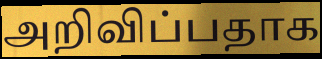
அறிவிப்பதாக